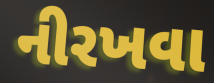
નીરખવા